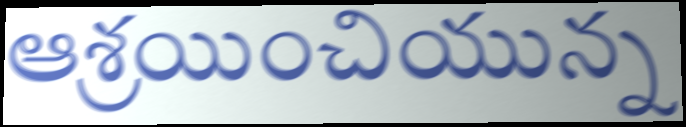
ఆశ్రయించియున్న